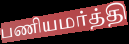
பணியமர்த்தி